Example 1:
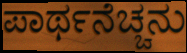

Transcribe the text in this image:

ಪಾರ್ಥನೆಚ್ಚನು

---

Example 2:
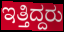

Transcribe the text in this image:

ಇತ್ತಿದ್ದರು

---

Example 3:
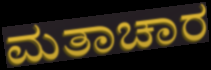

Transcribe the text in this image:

ಮತಾಚಾರ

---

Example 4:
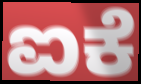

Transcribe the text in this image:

ಐಕೆ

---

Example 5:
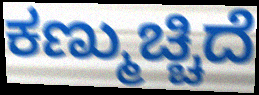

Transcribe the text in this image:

ಕಣ್ಮುಚ್ಚಿದೆ